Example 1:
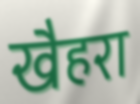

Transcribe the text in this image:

खैहरा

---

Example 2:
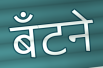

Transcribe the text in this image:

बँटने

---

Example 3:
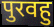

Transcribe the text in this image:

पुरवहु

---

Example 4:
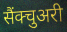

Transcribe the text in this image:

सैंक्चुअरी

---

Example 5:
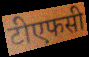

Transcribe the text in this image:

टीएफसी